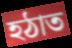
হঠাত